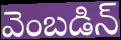
వెంబడిన్